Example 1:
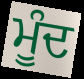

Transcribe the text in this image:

ਮੂੰਦ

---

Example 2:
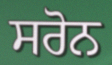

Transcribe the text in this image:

ਸਰੋਨ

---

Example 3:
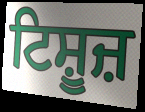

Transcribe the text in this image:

ਟਿਸ਼ੂਜ਼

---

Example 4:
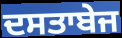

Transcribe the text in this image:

ਦਸਤਾਬੇਜ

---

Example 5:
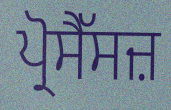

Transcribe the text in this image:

ਪ੍ਰੋਸੈੱਸਜ਼